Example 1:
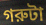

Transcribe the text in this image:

গরুটা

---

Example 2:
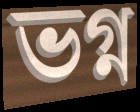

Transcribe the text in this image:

ভগ্ন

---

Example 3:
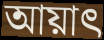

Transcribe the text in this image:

আয়াৎ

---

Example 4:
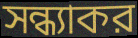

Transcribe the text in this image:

সন্ধ্যাকর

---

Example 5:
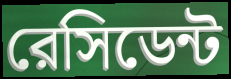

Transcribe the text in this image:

রেসিডেন্ট